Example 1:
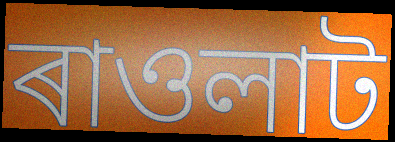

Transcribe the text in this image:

ৰাওলাট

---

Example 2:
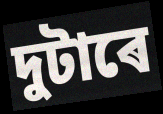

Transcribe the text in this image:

দুটাৰে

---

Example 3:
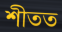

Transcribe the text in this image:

শীতত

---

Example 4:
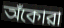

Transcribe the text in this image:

অঁকোৱা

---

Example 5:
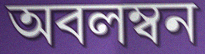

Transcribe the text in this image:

অবলম্বন